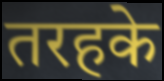
तरहके